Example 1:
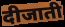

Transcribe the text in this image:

दीजाती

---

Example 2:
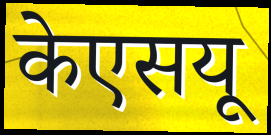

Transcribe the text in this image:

केएसयू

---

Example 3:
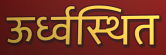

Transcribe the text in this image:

ऊर्ध्वस्थित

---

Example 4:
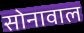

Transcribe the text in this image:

सोनावाल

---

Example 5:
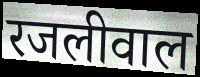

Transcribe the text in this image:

रजलीवाल